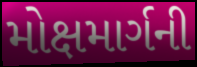
મોક્ષમાર્ગની